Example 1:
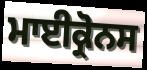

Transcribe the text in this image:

ਮਾਈਕ੍ਰੋਨਸ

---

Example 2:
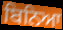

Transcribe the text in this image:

ਬਿਨਿਆ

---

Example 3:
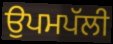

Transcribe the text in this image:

ਉਪਮਪੱਲੀ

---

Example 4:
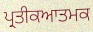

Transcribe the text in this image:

ਪ੍ਰਤੀਕਆਤਮਕ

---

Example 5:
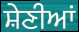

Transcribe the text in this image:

ਸ਼ੇਣੀਆਂ